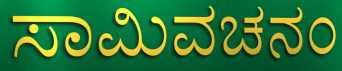
ಸಾಮಿವಚನಂ